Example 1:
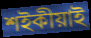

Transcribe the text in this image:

শইকীয়াই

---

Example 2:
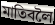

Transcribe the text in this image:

মাতিবলৈ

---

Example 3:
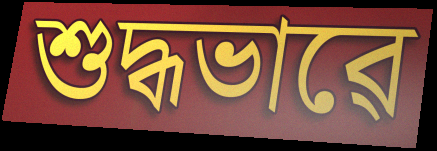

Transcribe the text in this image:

শুদ্ধভাৱে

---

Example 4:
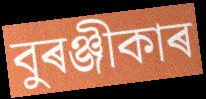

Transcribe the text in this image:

বুৰঞ্জীকাৰ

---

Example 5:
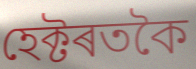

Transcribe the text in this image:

হেক্টৰতকৈ